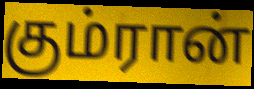
கும்ரான்